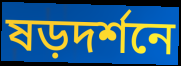
ষড়দর্শনে